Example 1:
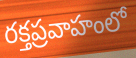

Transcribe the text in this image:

రక్తప్రవాహంలో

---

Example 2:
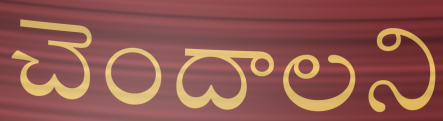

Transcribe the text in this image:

చెందాలని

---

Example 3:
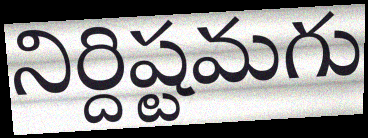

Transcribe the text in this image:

నిర్దిష్టమగు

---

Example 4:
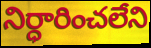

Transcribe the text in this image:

నిర్ధారించలేని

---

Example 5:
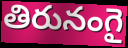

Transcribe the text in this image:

తిరునంగై